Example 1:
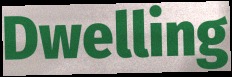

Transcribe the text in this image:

Dwelling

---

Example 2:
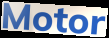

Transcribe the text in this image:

Motor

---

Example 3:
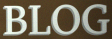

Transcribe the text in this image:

BLOG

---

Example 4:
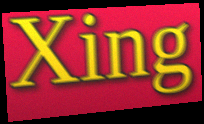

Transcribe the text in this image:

Xing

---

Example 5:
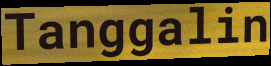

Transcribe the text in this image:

Tanggalin